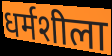
धर्मशीला